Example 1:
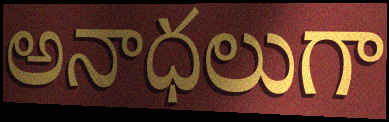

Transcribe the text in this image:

అనాధలుగా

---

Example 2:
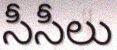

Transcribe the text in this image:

సీసీలు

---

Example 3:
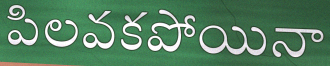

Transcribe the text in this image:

పిలవకపోయినా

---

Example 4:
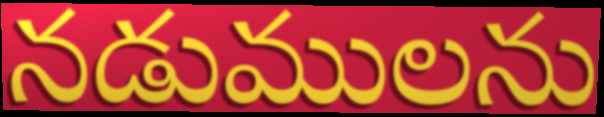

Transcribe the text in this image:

నడుములను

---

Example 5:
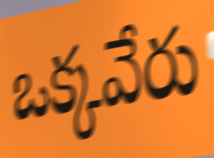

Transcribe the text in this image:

ఒక్కవేరు